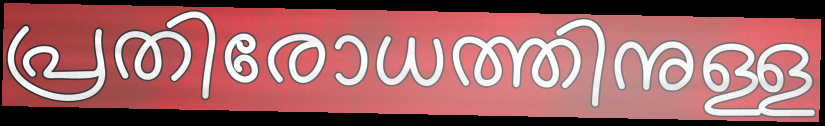
പ്രതിരോധത്തിനുള്ള